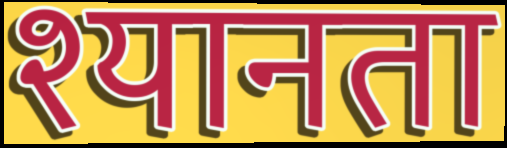
श्यानता